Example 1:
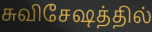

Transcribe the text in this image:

சுவிசேஷத்தில்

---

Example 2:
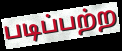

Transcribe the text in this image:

படிப்பற்ற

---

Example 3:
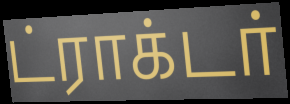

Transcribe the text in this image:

ட்ராக்டர்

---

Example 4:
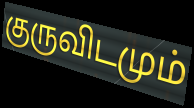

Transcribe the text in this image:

குருவிடமும்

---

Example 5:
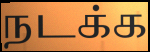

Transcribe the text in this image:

நடக்க